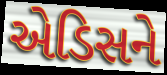
એડિસને